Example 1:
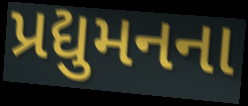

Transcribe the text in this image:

પ્રદ્યુમનના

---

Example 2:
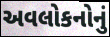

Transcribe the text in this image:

અવલોકનોનું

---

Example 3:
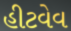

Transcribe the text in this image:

હીટવેવ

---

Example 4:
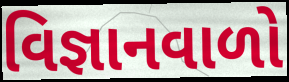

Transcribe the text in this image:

વિજ્ઞાનવાળો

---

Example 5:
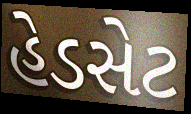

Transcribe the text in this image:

હેડસેટ